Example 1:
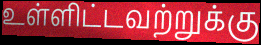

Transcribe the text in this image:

உள்ளிட்டவற்றுக்கு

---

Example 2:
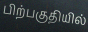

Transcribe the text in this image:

பிற்பகுதியில்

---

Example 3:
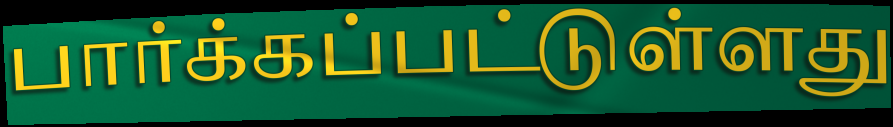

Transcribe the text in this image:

பார்க்கப்பட்டுள்ளது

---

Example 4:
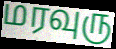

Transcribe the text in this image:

மரவுரு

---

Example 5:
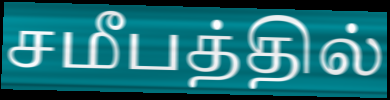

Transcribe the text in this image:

சமீபத்தில்